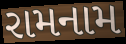
રામનામ